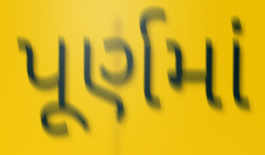
પૂર્ણમાં